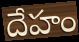
దేహం